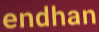
endhan